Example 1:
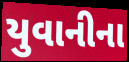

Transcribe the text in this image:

યુવાનીના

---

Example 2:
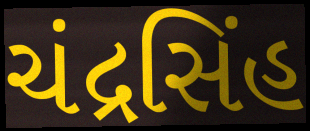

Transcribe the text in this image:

ચંદ્રસિંહ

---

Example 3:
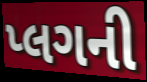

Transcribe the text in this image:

પ્લગની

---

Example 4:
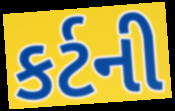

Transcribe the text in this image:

કર્ટની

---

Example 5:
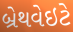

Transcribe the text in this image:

બ્રેથવેઇટે